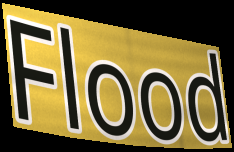
Flood